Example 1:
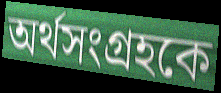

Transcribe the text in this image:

অর্থসংগ্রহকে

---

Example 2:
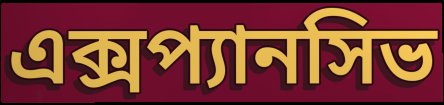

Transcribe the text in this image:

এক্সপ্যানসিভ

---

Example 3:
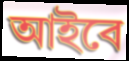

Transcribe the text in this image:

আইবে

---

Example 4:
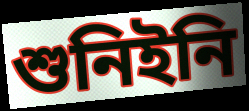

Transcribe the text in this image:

শুনিইনি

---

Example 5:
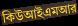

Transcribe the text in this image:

কিউআইএমআর